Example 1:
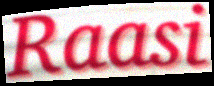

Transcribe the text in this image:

Raasi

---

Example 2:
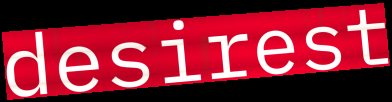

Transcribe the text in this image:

desirest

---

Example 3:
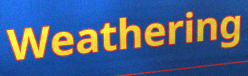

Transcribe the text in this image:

Weathering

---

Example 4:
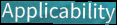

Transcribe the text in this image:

Applicability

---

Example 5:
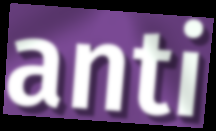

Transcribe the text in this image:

anti